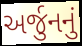
અર્જુનનું